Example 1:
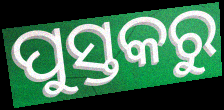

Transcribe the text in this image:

ପୁସ୍ତକରୁ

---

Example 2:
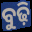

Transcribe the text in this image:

ବୁଢ଼ି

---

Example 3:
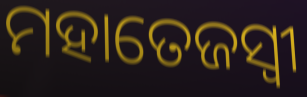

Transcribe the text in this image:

ମହାତେଜସ୍ୱୀ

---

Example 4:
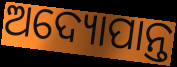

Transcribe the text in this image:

ଅଦ୍ୟୋପାନ୍ତ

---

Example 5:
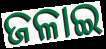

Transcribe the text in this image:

ଜଳାଇ